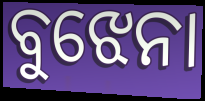
ବୁଝେନା